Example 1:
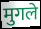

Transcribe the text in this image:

मुगले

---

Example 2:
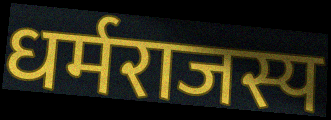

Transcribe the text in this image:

धर्मराजस्य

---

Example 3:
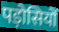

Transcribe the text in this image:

पड़ोसियों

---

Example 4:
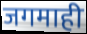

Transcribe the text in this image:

जगमाही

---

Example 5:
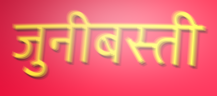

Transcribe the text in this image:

जुनीबस्ती